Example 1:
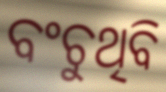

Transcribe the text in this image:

ବଂଚୁଥିବି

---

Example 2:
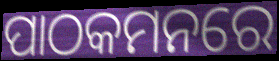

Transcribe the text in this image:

ପାଠକମନରେ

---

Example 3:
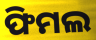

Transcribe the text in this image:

ଫିମଲ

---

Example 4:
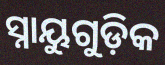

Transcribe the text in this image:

ସ୍ନାୟୁଗୁଡ଼ିକ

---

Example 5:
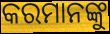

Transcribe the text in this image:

କରମାନଙ୍କୁ